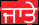
ਜਾਤੇ